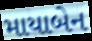
માયાબેન